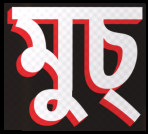
মুচ্